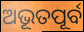
ଅଭୂତପୂର୍ବ